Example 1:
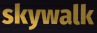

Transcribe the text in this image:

skywalk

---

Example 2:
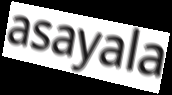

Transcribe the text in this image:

asayala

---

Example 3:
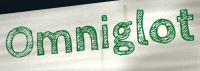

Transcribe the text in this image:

Omniglot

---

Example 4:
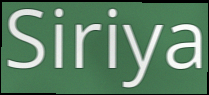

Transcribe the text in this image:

Siriya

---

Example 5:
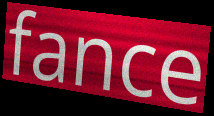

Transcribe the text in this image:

fance